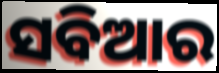
ସବିଆର